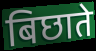
बिछाते